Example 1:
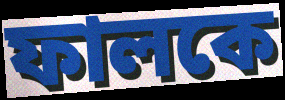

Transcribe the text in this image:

ফালকে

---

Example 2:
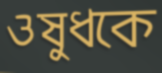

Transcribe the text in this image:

ওষুধকে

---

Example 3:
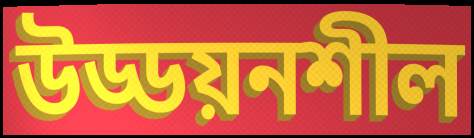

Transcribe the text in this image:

উড্ডয়নশীল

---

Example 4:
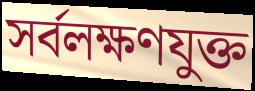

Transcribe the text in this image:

সর্বলক্ষণযুক্ত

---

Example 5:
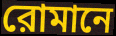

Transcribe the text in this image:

রোমানে